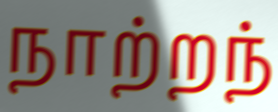
நாற்றந்